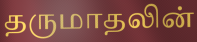
தருமாதலின்